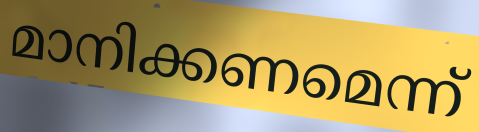
മാനിക്കണമെന്ന്